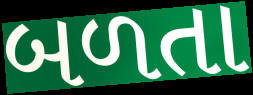
બળતા